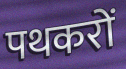
पथकरों